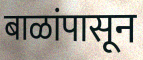
बाळांपासून